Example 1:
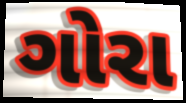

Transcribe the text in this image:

ગોરા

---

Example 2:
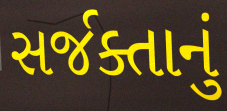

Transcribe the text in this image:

સર્જક્તાનું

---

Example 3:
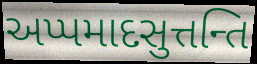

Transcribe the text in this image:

અપ્પમાદસુત્તન્તિ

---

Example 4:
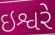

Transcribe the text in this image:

ઇશ્વરે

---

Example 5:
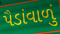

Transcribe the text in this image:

પૈડાંવાળું